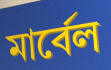
মার্বেল